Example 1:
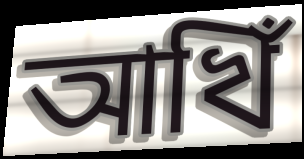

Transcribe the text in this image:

আখিঁ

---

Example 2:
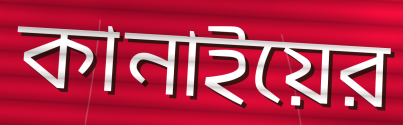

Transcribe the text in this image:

কানাইয়ের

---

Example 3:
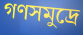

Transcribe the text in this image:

গণসমুদ্রে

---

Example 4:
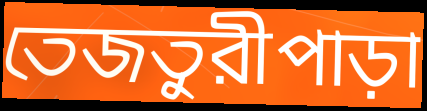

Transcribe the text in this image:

তেজতুরীপাড়া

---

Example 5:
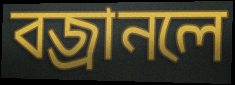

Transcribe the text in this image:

বজ্রানলে